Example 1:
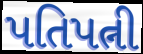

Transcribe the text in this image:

પતિપત્ની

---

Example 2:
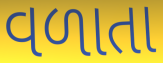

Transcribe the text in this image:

વળાતા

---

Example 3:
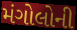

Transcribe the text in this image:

મંગોલોની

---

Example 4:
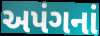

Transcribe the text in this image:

અપંગનાં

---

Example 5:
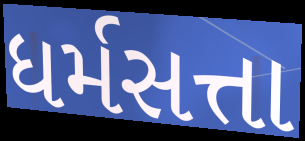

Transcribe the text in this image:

ધર્મસત્તા